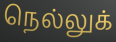
நெல்லுக்